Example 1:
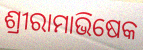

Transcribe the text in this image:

ଶ୍ରୀରାମାଭିଷେକ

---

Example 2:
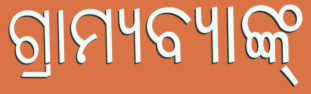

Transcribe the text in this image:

ଗ୍ରାମ୍ୟବ୍ୟାଙ୍କ୍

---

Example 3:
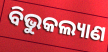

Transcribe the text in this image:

ବିଭୁକଲ୍ୟାଣ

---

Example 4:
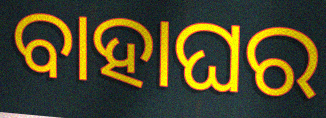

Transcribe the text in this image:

ବାହାଘର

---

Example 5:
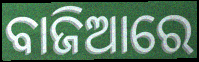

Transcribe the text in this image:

ବାଜିଆରେ